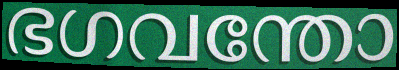
ഭഗവന്തോ